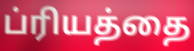
ப்ரியத்தை